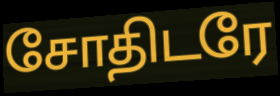
சோதிடரே